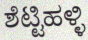
ಶೆಟ್ಟಿಹಳ್ಳಿ